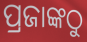
ପ୍ରଜାଙ୍କଠୁ